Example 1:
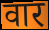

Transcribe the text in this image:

वार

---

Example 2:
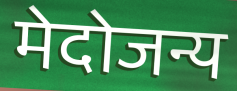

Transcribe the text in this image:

मेदोजन्य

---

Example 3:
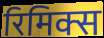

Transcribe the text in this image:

रिमिक्स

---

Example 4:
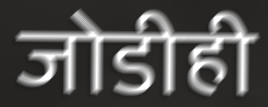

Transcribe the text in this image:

जोडीही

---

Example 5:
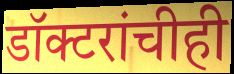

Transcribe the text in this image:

डॉक्टरांचीही